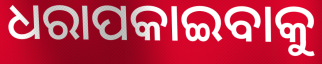
ଧରାପକାଇବାକୁ